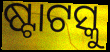
ଷ୍ଟାଟସ୍କୁ